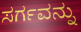
ಸರ್ಗವನ್ನು